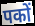
पकों